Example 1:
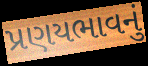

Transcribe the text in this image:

પ્રણયભાવનું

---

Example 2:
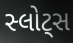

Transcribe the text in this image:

સ્લોટ્સ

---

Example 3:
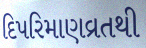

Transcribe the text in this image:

દિપરિમાણવ્રતથી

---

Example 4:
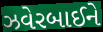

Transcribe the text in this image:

ઝવેરબાઈને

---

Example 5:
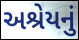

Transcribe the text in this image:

અશ્રેયનું